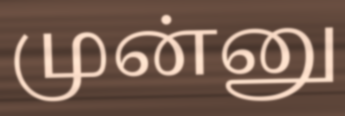
முன்னு